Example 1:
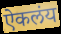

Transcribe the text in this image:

ऐकलंय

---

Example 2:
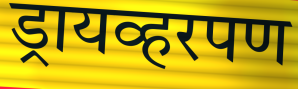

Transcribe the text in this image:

ड्रायव्हरपण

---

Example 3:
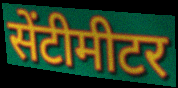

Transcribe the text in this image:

सेंटीमीटर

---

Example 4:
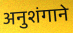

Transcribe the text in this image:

अनुशंगाने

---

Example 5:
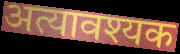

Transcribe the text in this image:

अत्यावश्‍यक